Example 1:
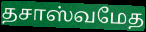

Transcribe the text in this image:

தசாஸ்வமேத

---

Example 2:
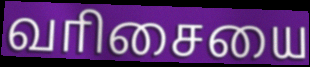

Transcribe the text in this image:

வரிசையை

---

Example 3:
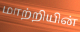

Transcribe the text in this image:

மாற்றியின்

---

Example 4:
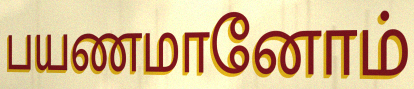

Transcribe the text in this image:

பயணமானோம்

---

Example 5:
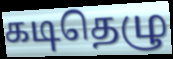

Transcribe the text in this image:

கடிதெழு